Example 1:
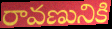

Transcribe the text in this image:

రావణునికి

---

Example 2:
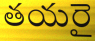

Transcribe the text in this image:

తయరై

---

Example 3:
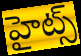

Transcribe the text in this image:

హైట్స్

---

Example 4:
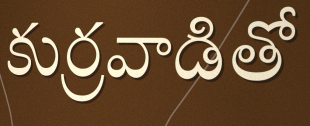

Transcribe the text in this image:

కుర్రవాడితో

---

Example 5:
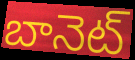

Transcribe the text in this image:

బానెట్